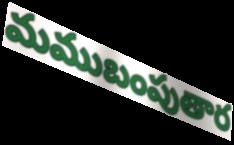
మముబంపుతార